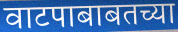
वाटपाबाबतच्या